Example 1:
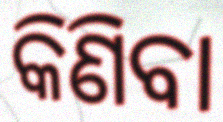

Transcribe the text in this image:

କିଣିବା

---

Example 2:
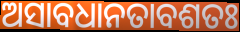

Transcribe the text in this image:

ଅସାବଧାନତାବଶତଃ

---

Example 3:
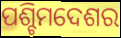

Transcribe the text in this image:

ପଶ୍ଚିମଦେଶର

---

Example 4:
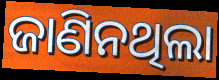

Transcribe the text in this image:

ଜାଣିନଥିଲା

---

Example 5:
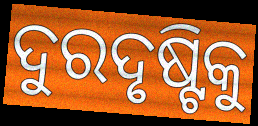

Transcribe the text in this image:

ଦୁରଦୃଷ୍ଟିକୁ